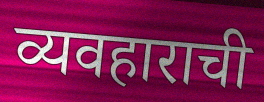
व्यवहाराची